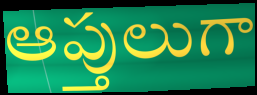
ఆప్తులుగా